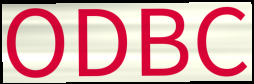
ODBC